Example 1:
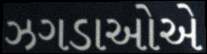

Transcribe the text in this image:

ઝગડાઓએ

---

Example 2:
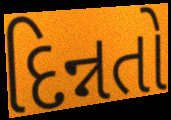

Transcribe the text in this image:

દિન્નતો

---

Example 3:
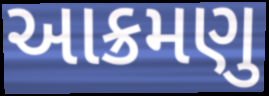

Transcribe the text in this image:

આક્રમણુ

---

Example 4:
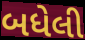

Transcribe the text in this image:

બધેલી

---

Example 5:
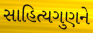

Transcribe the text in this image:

સાહિત્યગુણને